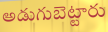
అడుగుబెట్టారు